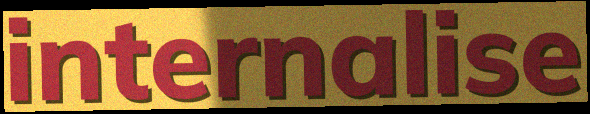
internalise